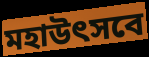
মহাউৎসবে